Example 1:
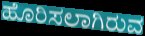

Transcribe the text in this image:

ಹೊರಿಸಲಾಗಿರುವ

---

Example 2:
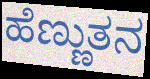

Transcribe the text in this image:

ಹೆಣ್ಣುತನ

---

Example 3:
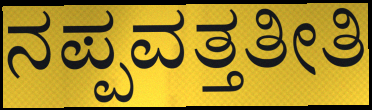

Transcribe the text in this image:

ನಪ್ಪವತ್ತತೀತಿ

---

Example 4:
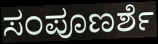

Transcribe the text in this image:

ಸಂಪೂಣರ್ಶೆ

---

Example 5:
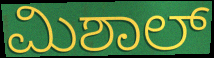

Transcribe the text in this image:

ಮಿಶಾಲ್